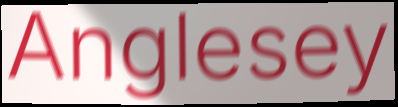
Anglesey